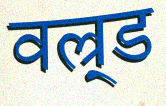
वल्र्ड